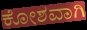
ಕೋಶವಾಗಿ